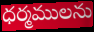
ధర్మములను